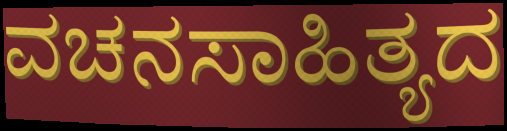
ವಚನಸಾಹಿತ್ಯದ